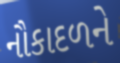
નૌકાદળને